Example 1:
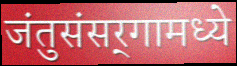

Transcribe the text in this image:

जंतुसंसर्गामध्ये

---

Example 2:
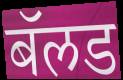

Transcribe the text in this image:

बॅलड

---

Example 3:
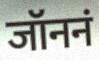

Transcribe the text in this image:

जॉननं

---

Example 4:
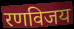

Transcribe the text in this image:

रणविजय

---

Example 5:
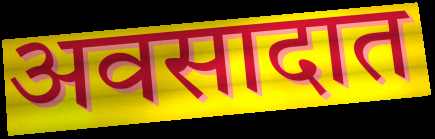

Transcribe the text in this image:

अवसादात